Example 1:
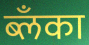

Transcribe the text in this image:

ब्लँका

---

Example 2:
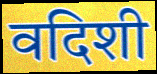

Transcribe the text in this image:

वदिशी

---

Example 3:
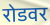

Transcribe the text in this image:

रोडवर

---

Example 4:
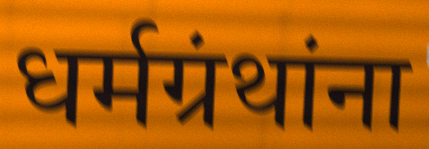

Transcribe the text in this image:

धर्मग्रंथांना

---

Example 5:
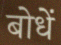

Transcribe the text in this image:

बोधें